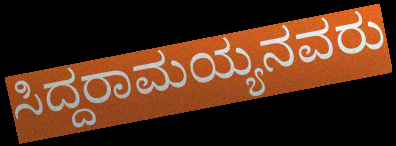
ಸಿದ್ದರಾಮಯ್ಯನವರು